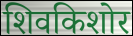
शिवकिशोर